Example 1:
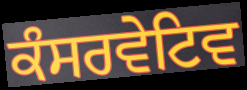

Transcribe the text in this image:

ਕੰਸਰਵੇਟਿਵ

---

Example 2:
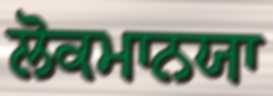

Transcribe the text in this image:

ਲੋਕਮਾਨਯਾ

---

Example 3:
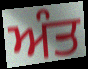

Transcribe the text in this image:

ਅੰਤ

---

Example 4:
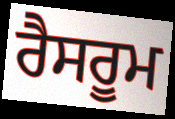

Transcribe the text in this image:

ਰੈਸਰੂਮ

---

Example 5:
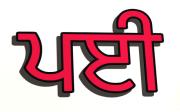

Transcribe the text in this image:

ਪਈ